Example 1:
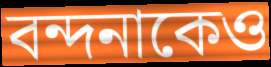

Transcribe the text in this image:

বন্দনাকেও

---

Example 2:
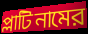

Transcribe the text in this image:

প্লাটিনামের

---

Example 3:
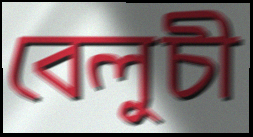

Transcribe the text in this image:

বেলুচী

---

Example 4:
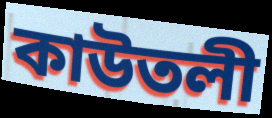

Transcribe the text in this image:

কাউতলী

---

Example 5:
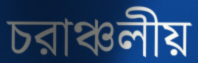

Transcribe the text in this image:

চরাঞ্চলীয়